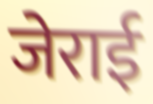
जेराई